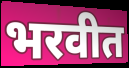
भरवीत